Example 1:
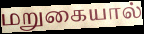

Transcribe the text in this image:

மறுகையால்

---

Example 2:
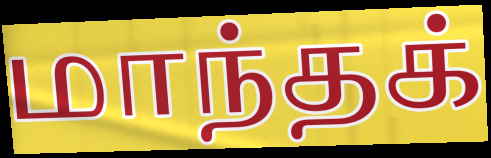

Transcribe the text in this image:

மாந்தக்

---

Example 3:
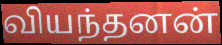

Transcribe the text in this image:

வியந்தனன்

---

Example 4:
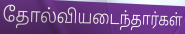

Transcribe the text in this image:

தோல்வியடைந்தார்கள்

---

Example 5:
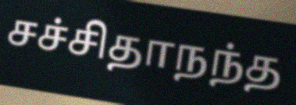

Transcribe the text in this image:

சச்சிதாநந்த